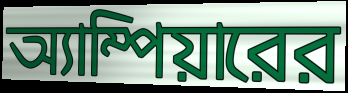
অ্যাম্পিয়ারের